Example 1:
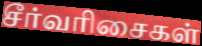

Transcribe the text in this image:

சீர்வரிசைகள்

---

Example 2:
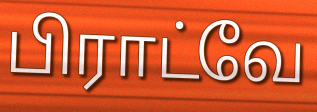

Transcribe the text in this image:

பிராட்வே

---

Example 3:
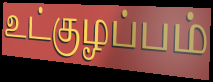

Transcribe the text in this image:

உட்குழப்பம்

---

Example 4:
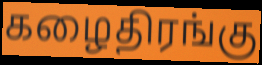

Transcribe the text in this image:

கழைதிரங்கு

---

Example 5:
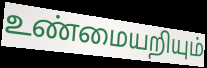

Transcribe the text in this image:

உண்மையறியும்